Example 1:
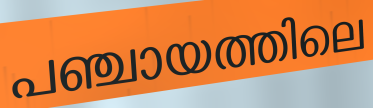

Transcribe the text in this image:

പഞ്ചായത്തിലെ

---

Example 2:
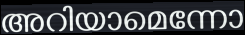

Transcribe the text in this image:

അറിയാമെന്നോ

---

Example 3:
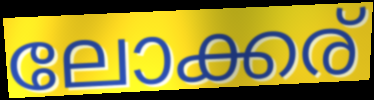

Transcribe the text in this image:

ലോക്കര്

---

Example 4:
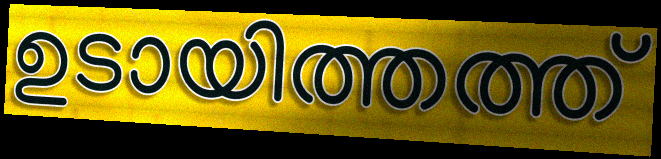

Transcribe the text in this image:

ഉടായിത്തത്ത്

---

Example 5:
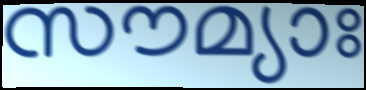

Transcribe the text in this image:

സൗമ്യാഃ